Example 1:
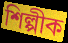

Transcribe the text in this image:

শিল্পীক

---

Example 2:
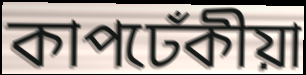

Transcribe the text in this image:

কাপঢেঁকীয়া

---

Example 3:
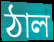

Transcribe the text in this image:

ঠাল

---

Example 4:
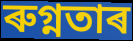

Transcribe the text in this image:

ৰুগ্নতাৰ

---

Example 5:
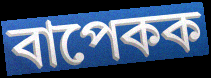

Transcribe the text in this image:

বাপেকক